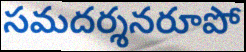
సమదర్శనరూపో